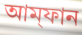
আম্‌ফান